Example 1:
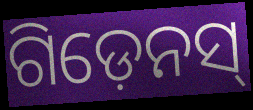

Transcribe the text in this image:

ଗିଡ଼େନସ୍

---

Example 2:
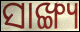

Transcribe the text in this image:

ସାଙ୍ଖ୍ୟ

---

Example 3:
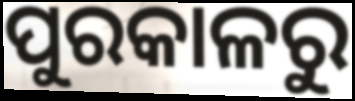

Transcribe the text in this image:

ପୁରକାଳରୁ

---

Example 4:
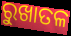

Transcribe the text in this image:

ରୁଖାତଳ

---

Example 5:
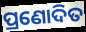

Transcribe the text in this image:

ପ୍ରଣୋଦିତ